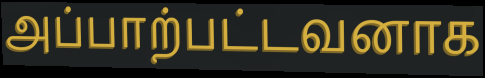
அப்பாற்பட்டவனாக